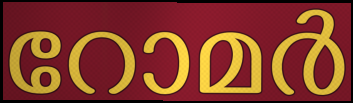
റോമർ